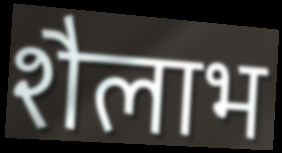
शैलाभ